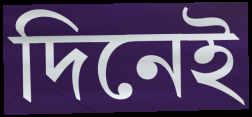
দিনেই